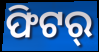
ଫିଟର୍